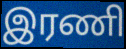
இரணி